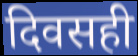
दिवसही